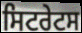
ਸਿਟਰੇਟਸ